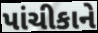
પાંચીકાને